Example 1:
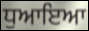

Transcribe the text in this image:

ਧੁਆਇਆ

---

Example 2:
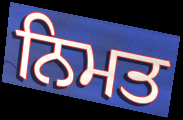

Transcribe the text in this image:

ਨਿਮਤ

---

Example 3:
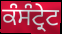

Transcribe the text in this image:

ਕੰਸੰਟ੍ਰੇਟ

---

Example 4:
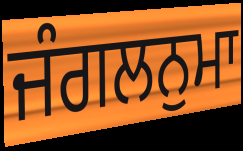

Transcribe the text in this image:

ਜੰਗਲਨੁਮਾ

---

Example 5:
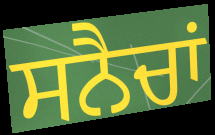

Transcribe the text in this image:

ਸਨੈਚਾਂ